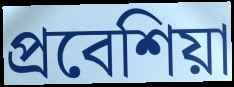
প্রবেশিয়া